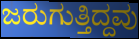
ಜರುಗುತ್ತಿದ್ದವು